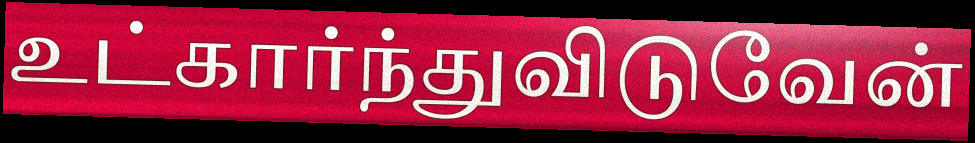
உட்கார்ந்துவிடுவேன்